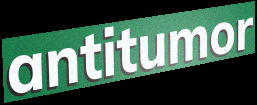
antitumor